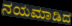
ನಯಮಾಡಿದ